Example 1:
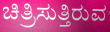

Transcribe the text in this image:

ಚಿತ್ರಿಸುತ್ತಿರುವ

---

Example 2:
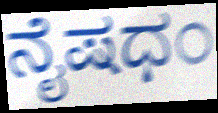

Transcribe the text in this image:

ನೈಷಧಂ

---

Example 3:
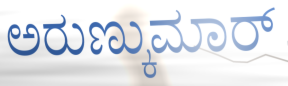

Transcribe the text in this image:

ಅರುಣ್ಕುಮಾರ್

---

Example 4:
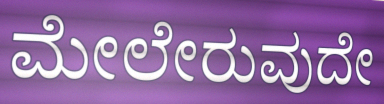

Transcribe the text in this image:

ಮೇಲೇರುವುದೇ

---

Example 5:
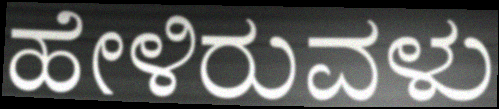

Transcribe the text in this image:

ಹೇಳಿರುವಳು